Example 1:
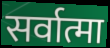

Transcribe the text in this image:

सर्वात्मा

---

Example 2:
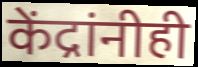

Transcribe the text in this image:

केंद्रांनीही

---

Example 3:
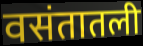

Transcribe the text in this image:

वसंतातली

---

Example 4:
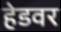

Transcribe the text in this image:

हेडवर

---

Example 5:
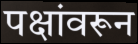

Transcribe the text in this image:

पक्षांवरून